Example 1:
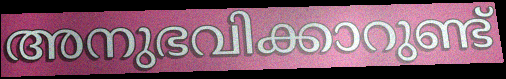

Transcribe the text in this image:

അനുഭവിക്കാറുണ്ട്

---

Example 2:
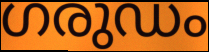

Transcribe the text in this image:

ഗരുഡം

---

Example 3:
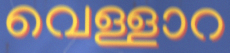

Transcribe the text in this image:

വെള്ളാറ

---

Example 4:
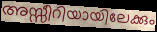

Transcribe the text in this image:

അസ്സീറിയായിലേക്കും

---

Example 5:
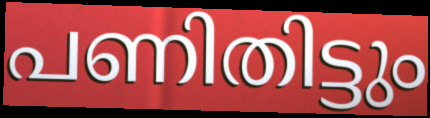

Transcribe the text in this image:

പണിതിട്ടും